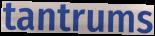
tantrums